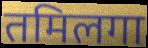
तमिलगा